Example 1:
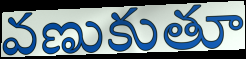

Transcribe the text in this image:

వణుకుతూ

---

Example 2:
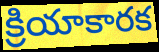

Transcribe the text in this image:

క్రియాకారక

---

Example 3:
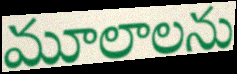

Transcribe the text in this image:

మూలాలను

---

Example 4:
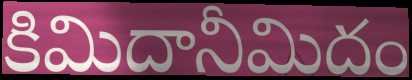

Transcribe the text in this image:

కిమిదానీమిదం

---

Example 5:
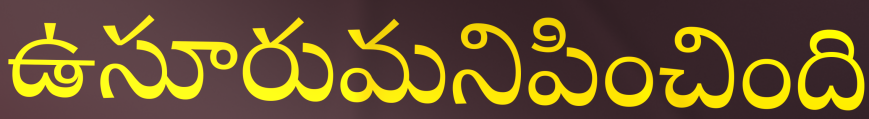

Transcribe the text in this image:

ఉసూరుమనిపించింది